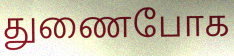
துணைபோக